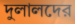
দুলালদের